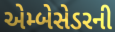
એમ્બેસેડરની